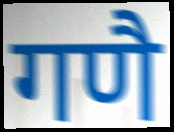
गणै